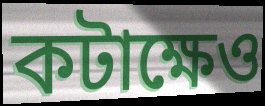
কটাক্ষেও